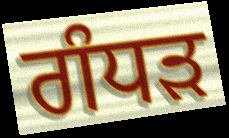
ਗੰਧੜ